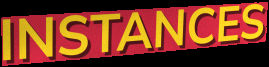
INSTANCES